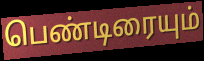
பெண்டிரையும்